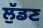
ਲੁੱਡਣ